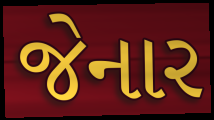
જેનાર